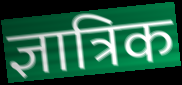
ज्ञात्रिक